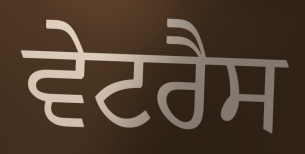
ਵੇਟਰੈਸ